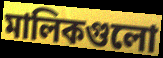
মালিকগুলো